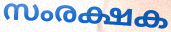
സംരക്ഷക